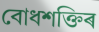
বোধশক্তিৰ